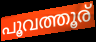
പൂവത്തൂര്